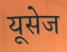
यूसेज